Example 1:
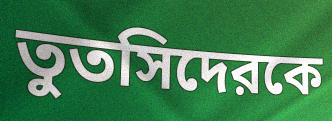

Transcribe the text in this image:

তুতসিদেরকে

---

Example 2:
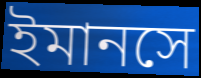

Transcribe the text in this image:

ইমানসে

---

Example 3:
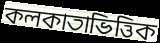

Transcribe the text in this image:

কলকাতাভিত্তিক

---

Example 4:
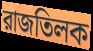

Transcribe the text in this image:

রাজতিলক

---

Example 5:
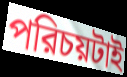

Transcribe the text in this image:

পরিচয়টাই